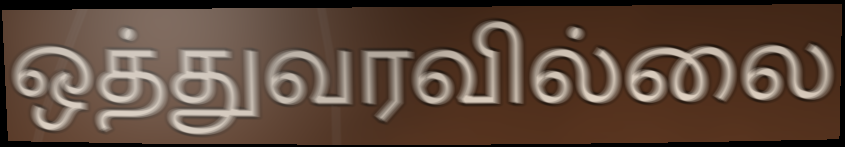
ஒத்துவரவில்லை